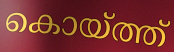
കൊയ്ത്ത്